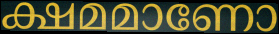
ക്ഷമമാണോ